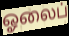
ஓலைப்